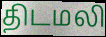
திடமலி